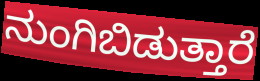
ನುಂಗಿಬಿಡುತ್ತಾರೆ